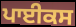
ਪਾਈਕਸ